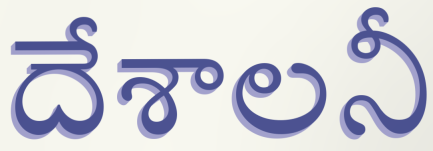
దేశాలనీ